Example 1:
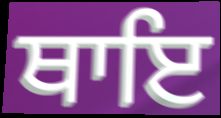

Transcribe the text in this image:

ਥਾਇ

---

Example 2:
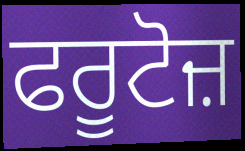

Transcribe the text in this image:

ਫਰੂਟੋਜ਼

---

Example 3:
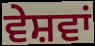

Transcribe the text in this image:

ਵੇਸ਼ਵਾਂ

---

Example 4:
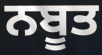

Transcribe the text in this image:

ਨਬੂਤ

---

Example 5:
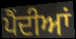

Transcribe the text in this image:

ਪੈਂਦੀਆਂ